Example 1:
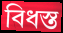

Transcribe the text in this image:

বিধস্ত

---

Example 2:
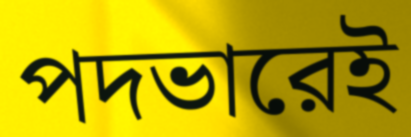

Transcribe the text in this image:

পদভারেই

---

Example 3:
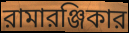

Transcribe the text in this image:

রামারঞ্জিকার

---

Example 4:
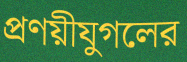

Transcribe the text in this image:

প্রণয়ীযুগলের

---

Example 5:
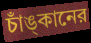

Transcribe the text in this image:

চাঁঙ্‌কানের